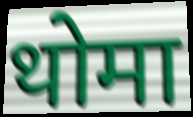
थोमा